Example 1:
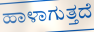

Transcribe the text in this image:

ಹಾಳಾಗುತ್ತದೆ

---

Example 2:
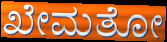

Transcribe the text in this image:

ಖೇಮತೋ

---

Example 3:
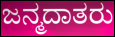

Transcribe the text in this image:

ಜನ್ಮದಾತರು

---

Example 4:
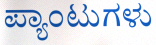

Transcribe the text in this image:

ಪ್ಯಾಂಟುಗಳು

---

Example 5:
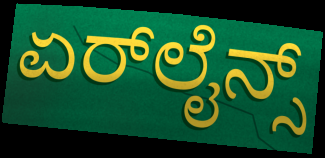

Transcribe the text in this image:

ಏರ್‌ಲೈನ್ಸ್